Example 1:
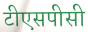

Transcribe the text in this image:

टीएसपीसी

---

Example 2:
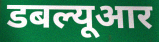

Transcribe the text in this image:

डबल्यूआर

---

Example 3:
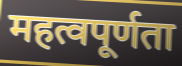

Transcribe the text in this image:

महत्वपूर्णता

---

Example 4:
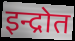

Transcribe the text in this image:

इन्द्रोत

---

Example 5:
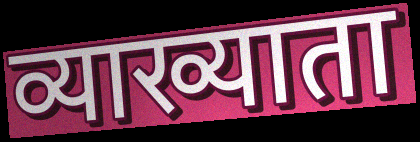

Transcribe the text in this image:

व्याख्याता